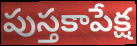
పుస్తకాపేక్ష